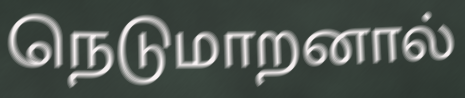
நெடுமாறனால்